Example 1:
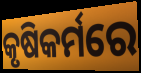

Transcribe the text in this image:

କୃଷିକର୍ମରେ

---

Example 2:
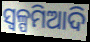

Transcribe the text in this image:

ସ୍ବଳ୍ପମିଆଦି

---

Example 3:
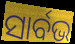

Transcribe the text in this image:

ସାର୍ବଭ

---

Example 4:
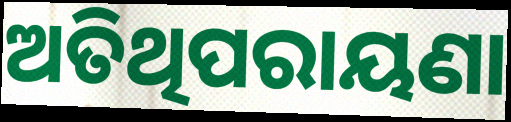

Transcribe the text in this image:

ଅତିଥିପରାୟଣା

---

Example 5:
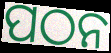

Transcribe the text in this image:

ପଠନ